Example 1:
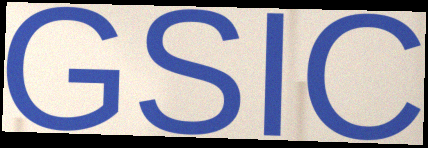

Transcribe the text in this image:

GSIC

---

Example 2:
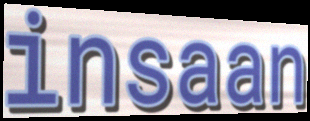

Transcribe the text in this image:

insaan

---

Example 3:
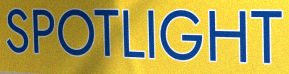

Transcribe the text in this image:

SPOTLIGHT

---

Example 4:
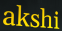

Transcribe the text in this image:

akshi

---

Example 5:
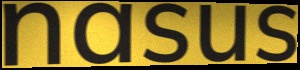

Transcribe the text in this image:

nasus